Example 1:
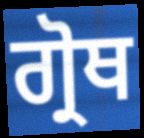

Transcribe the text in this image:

ਗ੍ਰੋਥ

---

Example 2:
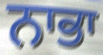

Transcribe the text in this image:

ਨਾਭਾ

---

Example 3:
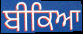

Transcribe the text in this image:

ਬੀਕਿਆ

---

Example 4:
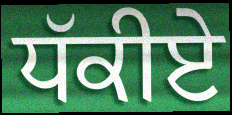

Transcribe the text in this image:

ਧੱਕੀਏ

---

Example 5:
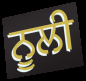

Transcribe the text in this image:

ਨੂਲੀ